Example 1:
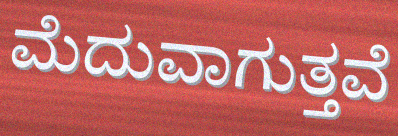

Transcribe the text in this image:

ಮೆದುವಾಗುತ್ತವೆ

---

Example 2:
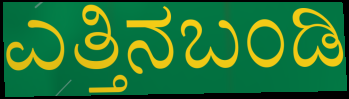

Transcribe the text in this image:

ಎತ್ತಿನಬಂಡಿ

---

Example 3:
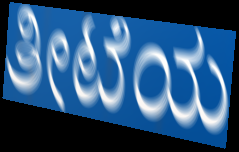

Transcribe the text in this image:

ತೀಟೆಯ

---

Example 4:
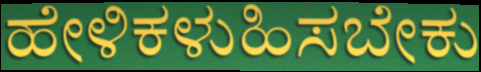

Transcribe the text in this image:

ಹೇಳಿಕಳುಹಿಸಬೇಕು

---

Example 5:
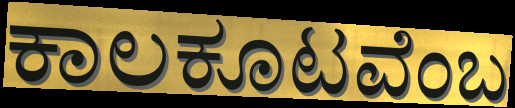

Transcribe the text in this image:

ಕಾಲಕೂಟವೆಂಬ